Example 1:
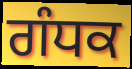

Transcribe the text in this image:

ਗੰਧਕ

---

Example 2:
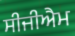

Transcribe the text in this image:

ਸੀਜੀਐਮ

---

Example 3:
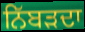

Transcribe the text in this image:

ਨਿੱਬੜਦਾ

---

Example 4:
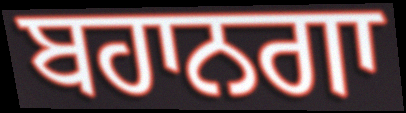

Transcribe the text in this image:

ਬਹਾਨਗਾ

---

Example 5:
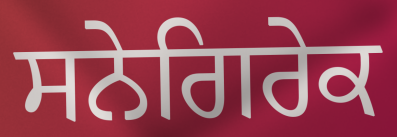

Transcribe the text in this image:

ਸਨੇਗਿਰੇਕ